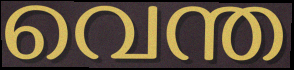
വെന്ത